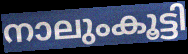
നാലുംകൂട്ടി